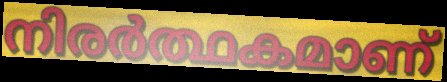
നിരർത്ഥകമാണ്